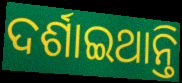
ଦର୍ଶାଇଥାନ୍ତି